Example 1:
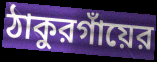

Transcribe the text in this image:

ঠাকুরগাঁয়ের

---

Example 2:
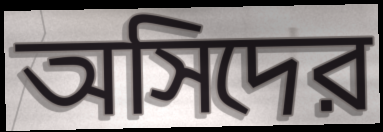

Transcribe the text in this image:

অসিদের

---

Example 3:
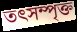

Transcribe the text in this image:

তৎসম্পৃক্ত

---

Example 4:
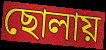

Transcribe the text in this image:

ছোলায়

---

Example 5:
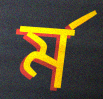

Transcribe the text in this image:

র্ম